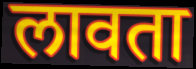
लावता